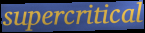
supercritical